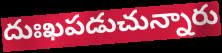
దుఃఖపడుచున్నారు